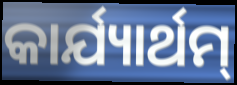
କାର୍ଯ୍ୟାର୍ଥମ୍